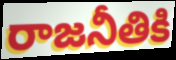
రాజనీతికి